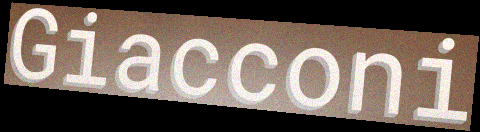
Giacconi